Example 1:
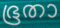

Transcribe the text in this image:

ഭൂതാ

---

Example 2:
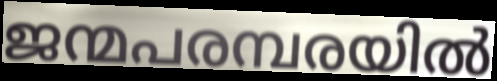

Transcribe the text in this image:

ജന്മപരമ്പരയിൽ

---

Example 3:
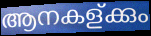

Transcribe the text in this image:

ആനകള്ക്കും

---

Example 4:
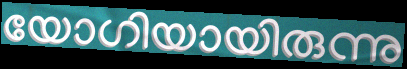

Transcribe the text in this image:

യോഗിയായിരുന്നു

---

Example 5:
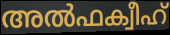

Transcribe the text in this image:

അൽഫക്വീഹ്